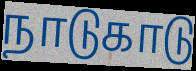
நாடுகாடு